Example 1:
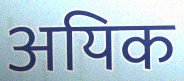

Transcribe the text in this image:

अयिक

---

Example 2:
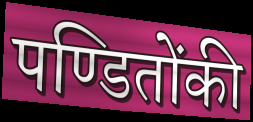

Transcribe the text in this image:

पण्डितोंकी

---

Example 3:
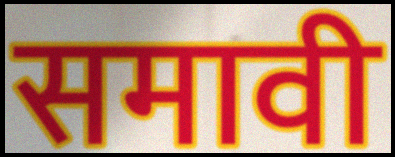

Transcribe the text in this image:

समावी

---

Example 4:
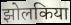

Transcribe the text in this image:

झोलकिया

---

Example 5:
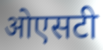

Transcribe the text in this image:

ओएसटी